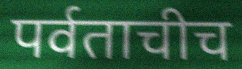
पर्वताचीच